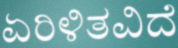
ಏರಿಳಿತವಿದೆ